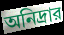
অনিদ্রার